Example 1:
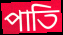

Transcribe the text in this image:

পাতি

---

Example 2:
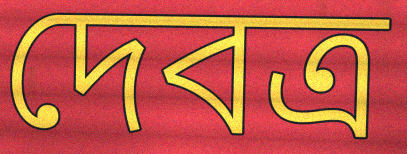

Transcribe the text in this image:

দেবত্র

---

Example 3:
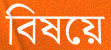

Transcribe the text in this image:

বিষয়ে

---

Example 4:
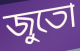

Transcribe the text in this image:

জুতো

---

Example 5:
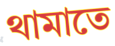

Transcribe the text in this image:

থামাতে